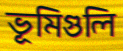
ভূমিগুলি